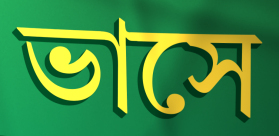
ভাসে